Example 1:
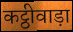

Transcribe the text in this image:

कट्ठीवाड़ा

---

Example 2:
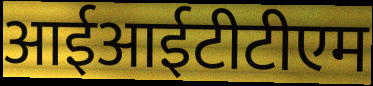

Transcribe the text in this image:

आईआईटीटीएम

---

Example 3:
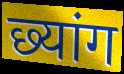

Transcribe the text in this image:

छ्यांग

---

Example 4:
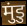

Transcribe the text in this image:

मुंडु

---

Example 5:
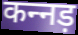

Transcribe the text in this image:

कन्‍नड़